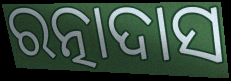
ରତ୍ନାଦାସ